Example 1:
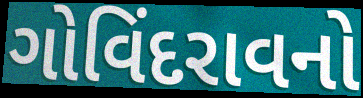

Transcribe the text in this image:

ગોવિંદરાવનો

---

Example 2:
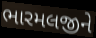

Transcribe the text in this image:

ભારમલજીને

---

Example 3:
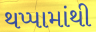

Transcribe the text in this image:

થપ્પામાંથી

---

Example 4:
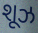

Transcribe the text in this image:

શૂઝ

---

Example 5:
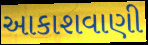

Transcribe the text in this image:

આકાશવાણી